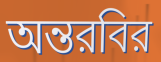
অন্তরবির